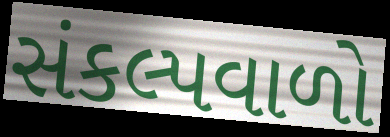
સંકલ્પવાળો